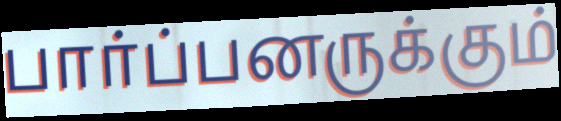
பார்ப்பனருக்கும்